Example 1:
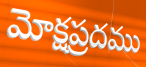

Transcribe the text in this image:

మోక్షప్రదము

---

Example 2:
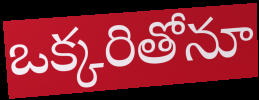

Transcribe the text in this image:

ఒక్కరితోనూ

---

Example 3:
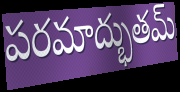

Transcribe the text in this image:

పరమాద్భుతమ్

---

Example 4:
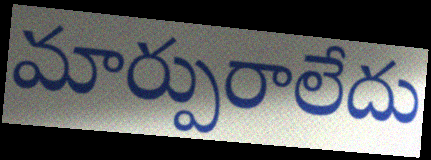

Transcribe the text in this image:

మార్పురాలేదు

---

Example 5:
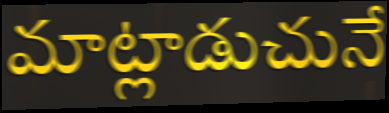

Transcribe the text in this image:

మాట్లాడుచునే